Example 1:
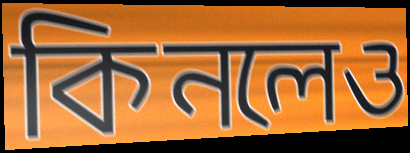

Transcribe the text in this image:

কিনলেও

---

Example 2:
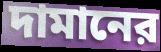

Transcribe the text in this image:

দামানের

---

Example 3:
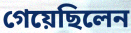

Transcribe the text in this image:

গেয়েছিলেন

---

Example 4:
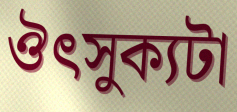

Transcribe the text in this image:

ঔৎসুক্যটা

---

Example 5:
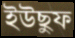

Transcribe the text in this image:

ইউছুফ